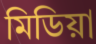
মিডিয়া